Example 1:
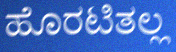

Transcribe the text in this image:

ಹೊರಟಿತಲ್ಲ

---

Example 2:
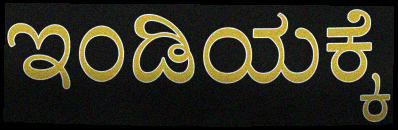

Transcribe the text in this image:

ಇಂಡಿಯಕ್ಕೆ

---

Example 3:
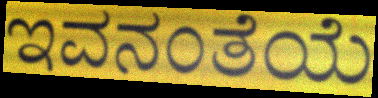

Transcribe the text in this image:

ಇವನಂತೆಯೆ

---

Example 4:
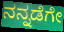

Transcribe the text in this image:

ನನ್ನಡೆಗೇ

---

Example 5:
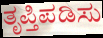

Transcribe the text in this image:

ತೃಪ್ತಿಪಡಿಸು